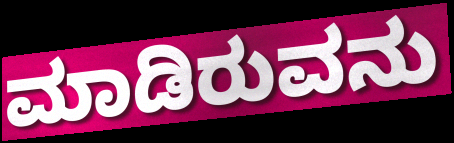
ಮಾಡಿರುವನು